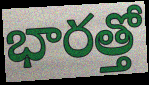
భారత్తో